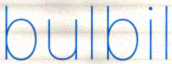
bulbil